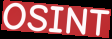
OSINT